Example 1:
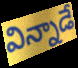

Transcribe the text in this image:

విన్నాడే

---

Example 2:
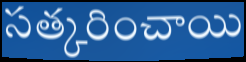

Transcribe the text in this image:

సత్కరించాయి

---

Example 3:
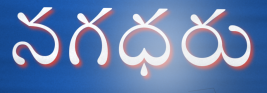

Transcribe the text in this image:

నగధరు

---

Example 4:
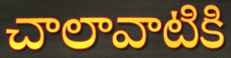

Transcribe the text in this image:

చాలావాటికి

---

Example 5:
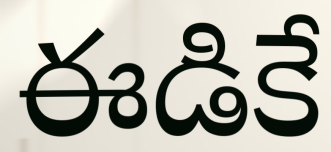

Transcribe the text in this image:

ఈడికే